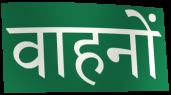
वाहनों